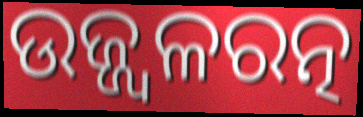
ଉଜ୍ଜ୍ୱଳରତ୍ନ